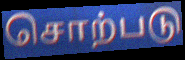
சொற்படு